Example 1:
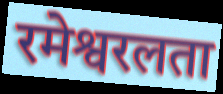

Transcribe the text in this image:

रमेश्वरलता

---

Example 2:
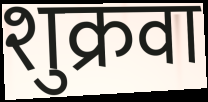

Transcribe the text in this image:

शुक्रवा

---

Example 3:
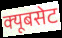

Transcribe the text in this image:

क्यूबसेट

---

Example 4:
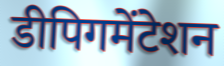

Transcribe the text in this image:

डीपिगमेंटेशन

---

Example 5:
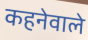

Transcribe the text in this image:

कहनेवाले